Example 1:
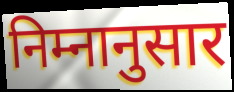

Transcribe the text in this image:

निम्नानुसार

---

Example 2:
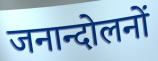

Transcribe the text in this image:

जनान्दोलनों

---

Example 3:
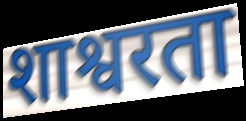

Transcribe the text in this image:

शाश्वरता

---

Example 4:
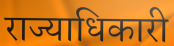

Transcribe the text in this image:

राज्याधिकारी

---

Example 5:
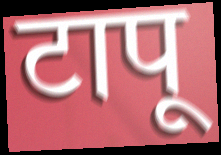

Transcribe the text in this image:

टापू